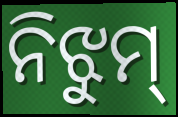
ନିଝୁମ୍